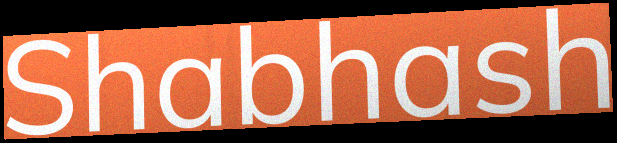
Shabhash